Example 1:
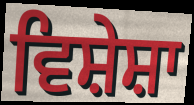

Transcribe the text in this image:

ਵਿਸ਼ੇਸ਼ਾ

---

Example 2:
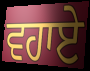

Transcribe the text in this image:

ਵਹਾਏ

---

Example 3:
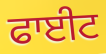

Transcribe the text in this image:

ਫਾਈਟ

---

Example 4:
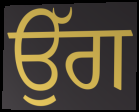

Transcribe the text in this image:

ਉੱਗ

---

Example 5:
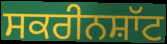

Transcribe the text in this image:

ਸਕਰੀਨਸ਼ਾੱਟ